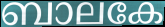
ബാലകേ